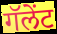
गॅलेंट